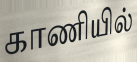
காணியில்